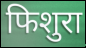
फिशुरा